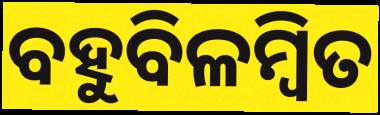
ବହୁବିଳମ୍ବିତ